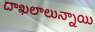
దాఖలాలున్నాయి